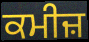
ਕਮੀਜ਼